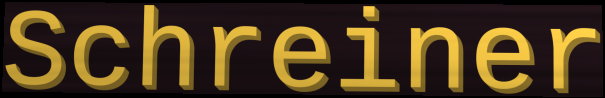
Schreiner